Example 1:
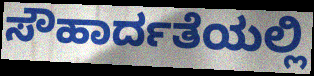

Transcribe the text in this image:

ಸೌಹಾರ್ದತೆಯಲ್ಲಿ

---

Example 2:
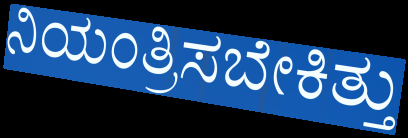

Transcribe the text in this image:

ನಿಯಂತ್ರಿಸಬೇಕಿತ್ತು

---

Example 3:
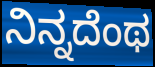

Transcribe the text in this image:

ನಿನ್ನದೆಂಥ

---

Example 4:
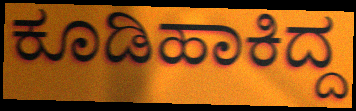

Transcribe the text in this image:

ಕೂಡಿಹಾಕಿದ್ದ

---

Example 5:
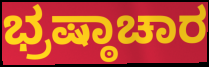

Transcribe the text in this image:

ಭ್ರಷ್ಠಾಚಾರ